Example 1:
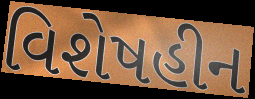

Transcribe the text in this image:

વિશેષહીન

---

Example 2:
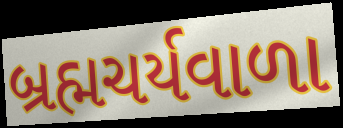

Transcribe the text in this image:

બ્રહ્મચર્યવાળા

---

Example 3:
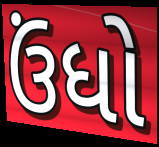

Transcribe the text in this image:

ઉંધો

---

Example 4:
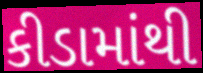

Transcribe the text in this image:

કીડામાંથી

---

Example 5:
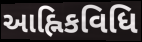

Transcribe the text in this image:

આહ્નિકવિધિ